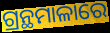
ଗ୍ରନ୍ଥମାଳାରେ